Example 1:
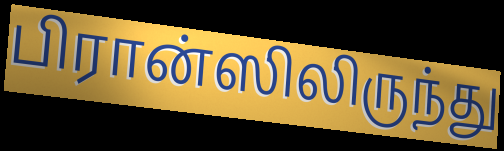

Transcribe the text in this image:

பிரான்ஸிலிருந்து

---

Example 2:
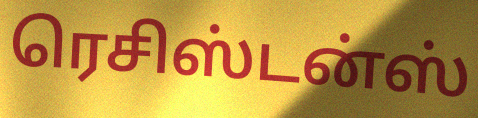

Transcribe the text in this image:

ரெசிஸ்டன்ஸ்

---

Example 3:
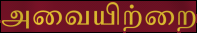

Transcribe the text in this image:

அவையிற்றை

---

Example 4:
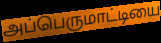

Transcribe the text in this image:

அப்பெருமாட்டியை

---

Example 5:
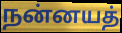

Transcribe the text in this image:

நன்னயத்